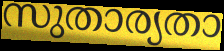
സുതാര്യതാ